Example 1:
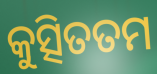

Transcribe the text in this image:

କୁତ୍ସିତତମ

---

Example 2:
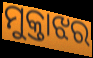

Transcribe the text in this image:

ମୁକ୍ତାଝର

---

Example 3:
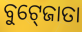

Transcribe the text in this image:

ବୁଟ୍‍ଜୋତା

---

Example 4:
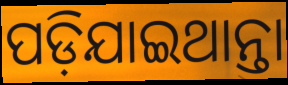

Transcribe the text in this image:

ପଡ଼ିଯାଇଥାନ୍ତା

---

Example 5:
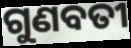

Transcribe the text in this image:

ଗୁଣବତୀ